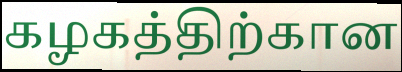
கழகத்திற்கான